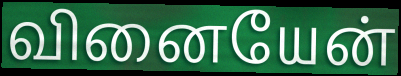
வினையேன்